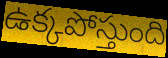
ఉక్కపోస్తుంది